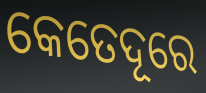
କେତେଦୂରେ